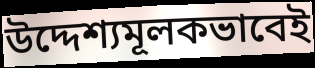
উদ্দেশ্যমূলকভাবেই